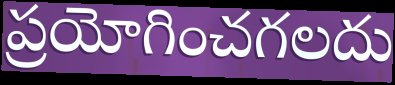
ప్రయోగించగలదు